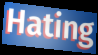
Hating